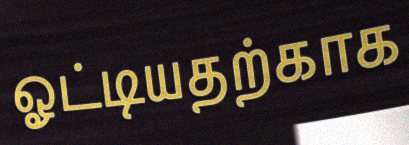
ஓட்டியதற்காக